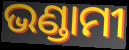
ଭଣ୍ଡାମୀ